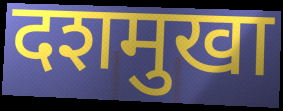
दशमुखा